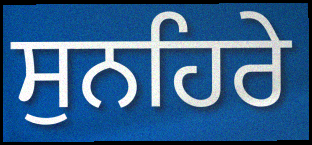
ਸੁਨਹਿਰੇ